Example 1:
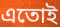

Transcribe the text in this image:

এতোই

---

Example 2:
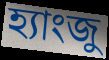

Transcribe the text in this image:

হ্যাংজু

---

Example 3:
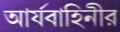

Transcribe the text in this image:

আর্যবাহিনীর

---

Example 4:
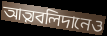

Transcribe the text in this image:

আত্মবলিদানেও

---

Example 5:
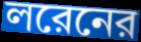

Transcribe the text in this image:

লরেনের